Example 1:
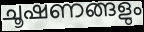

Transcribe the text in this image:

ചൂഷണങ്ങളും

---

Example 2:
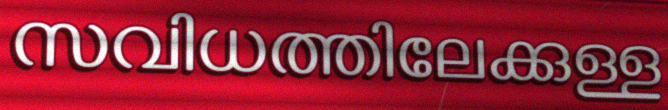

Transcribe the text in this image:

സവിധത്തിലേക്കുള്ള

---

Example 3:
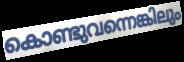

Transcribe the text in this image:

കൊണ്ടുവന്നെങ്കിലും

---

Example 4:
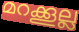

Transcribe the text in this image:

മറക്കൂല്ല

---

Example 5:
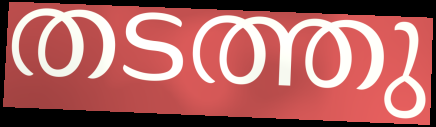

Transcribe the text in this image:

തടത്തു